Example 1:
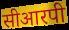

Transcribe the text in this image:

सीआरपी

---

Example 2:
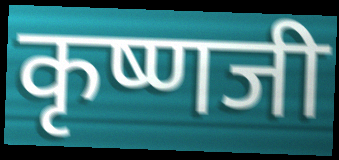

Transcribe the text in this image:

कृष्णजी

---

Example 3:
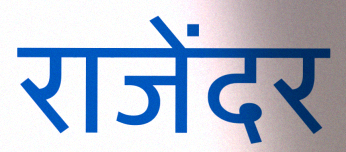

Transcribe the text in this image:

राजेंदर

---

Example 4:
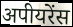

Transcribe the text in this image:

अपीयरेंस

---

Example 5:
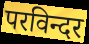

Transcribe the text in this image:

परविन्दर